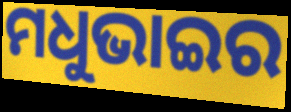
ମଧୁଭାଇର